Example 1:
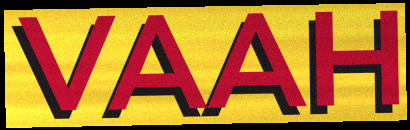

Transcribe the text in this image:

VAAH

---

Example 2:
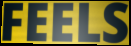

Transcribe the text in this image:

FEELS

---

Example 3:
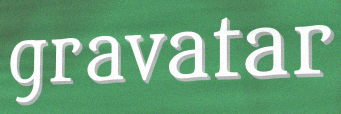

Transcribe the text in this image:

gravatar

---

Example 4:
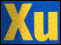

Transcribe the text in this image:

Xu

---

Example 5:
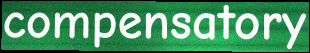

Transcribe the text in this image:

compensatory